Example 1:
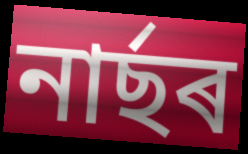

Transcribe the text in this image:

নাৰ্ছৰ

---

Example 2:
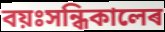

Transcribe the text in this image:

বয়ঃসন্ধিকালেৰ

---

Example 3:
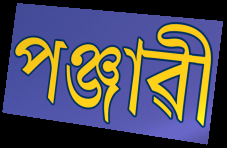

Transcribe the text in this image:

পঞ্জাৱী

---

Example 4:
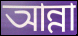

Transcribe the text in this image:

আন্না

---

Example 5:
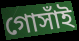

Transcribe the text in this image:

গোসাঁই